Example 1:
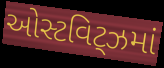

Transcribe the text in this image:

ઓસ્ટવિટ્ઝમાં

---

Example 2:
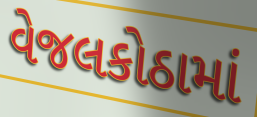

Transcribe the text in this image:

વેજલકોઠામાં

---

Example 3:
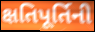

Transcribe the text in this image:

ક્ષતિપૂર્તિની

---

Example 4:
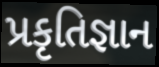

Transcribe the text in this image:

પ્રકૃતિજ્ઞાન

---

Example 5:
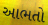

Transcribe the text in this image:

આભતો